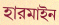
হারমাইন